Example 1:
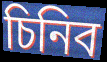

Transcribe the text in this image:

চিনিব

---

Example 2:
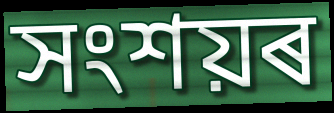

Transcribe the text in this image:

সংশয়ৰ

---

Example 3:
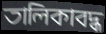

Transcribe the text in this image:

তালিকাবদ্ধ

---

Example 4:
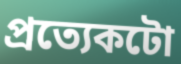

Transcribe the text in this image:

প্ৰত্যেকটো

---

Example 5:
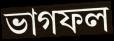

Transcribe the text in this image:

ভাগফল